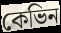
কেভিন